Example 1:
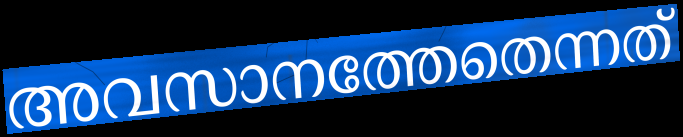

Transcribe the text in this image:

അവസാനത്തേതെന്നത്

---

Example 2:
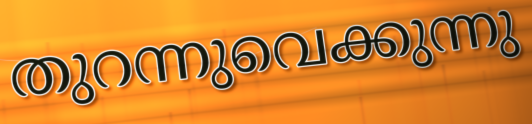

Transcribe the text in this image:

തുറന്നുവെക്കുന്നു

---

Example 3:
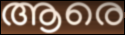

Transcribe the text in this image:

ആരെ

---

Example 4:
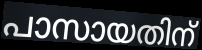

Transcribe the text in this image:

പാസായതിന്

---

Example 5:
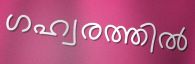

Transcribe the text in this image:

ഗഹ്വരത്തിൽ